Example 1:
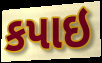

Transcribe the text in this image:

કપાઇ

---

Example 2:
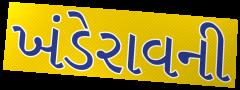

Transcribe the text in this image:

ખંડેરાવની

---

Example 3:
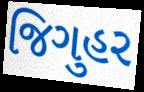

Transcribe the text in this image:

જિગુહર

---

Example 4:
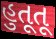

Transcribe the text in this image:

હુતૂતૂ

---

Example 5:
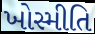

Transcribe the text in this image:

ખોસ્મીતિ